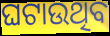
ଘଟାଉଥିବ